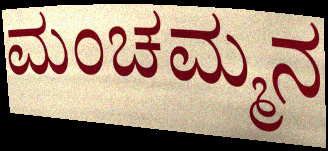
ಮಂಚಮ್ಮನ